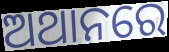
ଅଥାନରେ